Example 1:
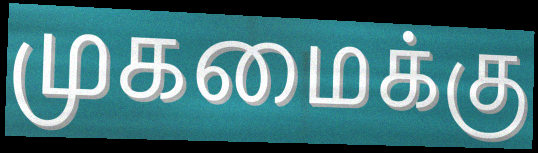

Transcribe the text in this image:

முகமைக்கு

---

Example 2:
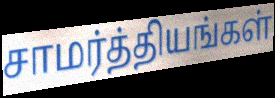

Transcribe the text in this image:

சாமர்த்தியங்கள்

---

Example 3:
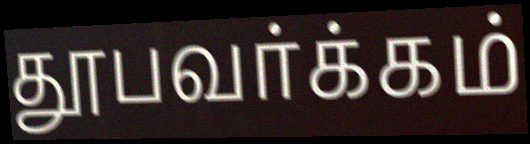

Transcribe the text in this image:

தூபவர்க்கம்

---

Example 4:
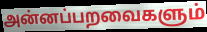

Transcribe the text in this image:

அன்னப்பறவைகளும்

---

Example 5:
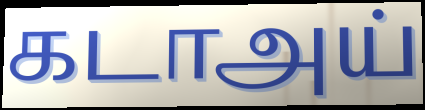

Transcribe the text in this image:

கடாஅய்